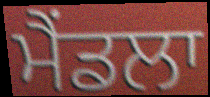
ਮੈਂਡਲਾ